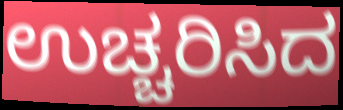
ಉಚ್ಚರಿಸಿದ